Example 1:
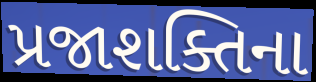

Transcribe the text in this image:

પ્રજાશક્તિના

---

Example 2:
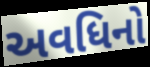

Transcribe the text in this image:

અવધિનો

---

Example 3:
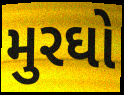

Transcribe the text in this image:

મુરઘો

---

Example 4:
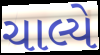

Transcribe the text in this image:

ચાલ્યે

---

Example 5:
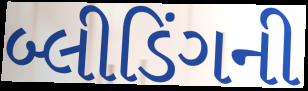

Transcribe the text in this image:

બ્લીડિંગની